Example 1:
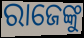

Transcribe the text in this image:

ରାଜେଙ୍କୁ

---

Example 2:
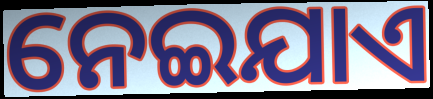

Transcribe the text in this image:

ନେଇଯାଏ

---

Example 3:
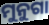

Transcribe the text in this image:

ମୁନୁଗା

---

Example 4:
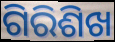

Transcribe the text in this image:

ଗିରିଶିଖ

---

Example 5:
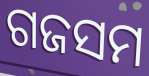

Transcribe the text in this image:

ଗଜସମ